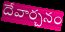
దేవార్చనం